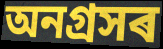
অনগ্ৰসৰ